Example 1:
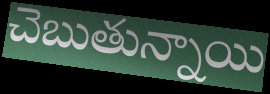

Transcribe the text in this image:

చెబుతున్నాయి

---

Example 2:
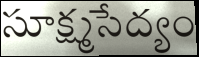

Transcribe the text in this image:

సూక్ష్మసేద్యం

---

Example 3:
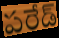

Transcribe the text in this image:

పరేడ్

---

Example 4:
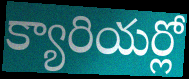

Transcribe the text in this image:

క్యారియర్లో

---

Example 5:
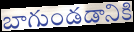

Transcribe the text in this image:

బాగుండడానికి